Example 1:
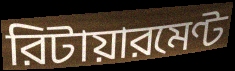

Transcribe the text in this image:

রিটায়ারমেণ্ট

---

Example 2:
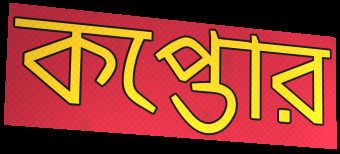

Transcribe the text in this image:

কপ্তোর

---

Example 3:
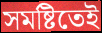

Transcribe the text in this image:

সমষ্টিতেই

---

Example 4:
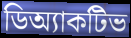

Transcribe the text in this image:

ডিঅ্যাকটিভ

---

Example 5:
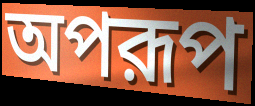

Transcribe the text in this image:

অপরূপ